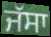
ਜੱਸਾ